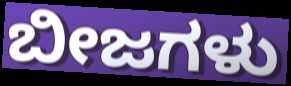
ಬೀಜಗಳು